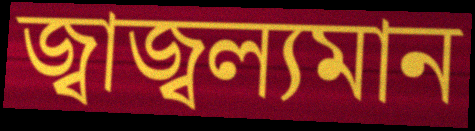
জ্বাজ্বল্যমান